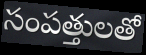
సంపత్తులతో